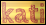
kati